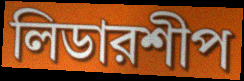
লিডারশীপ